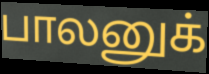
பாலனுக்